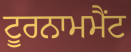
ਟੂਰਨਾਮਮੈਂਟ